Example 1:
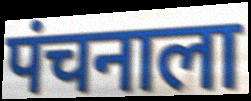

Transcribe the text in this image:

पंचनाला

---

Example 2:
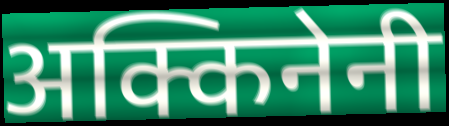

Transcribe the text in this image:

अक्किनेनी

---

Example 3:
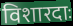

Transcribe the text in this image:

विशारदाः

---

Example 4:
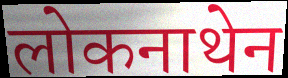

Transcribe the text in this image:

लोकनाथेन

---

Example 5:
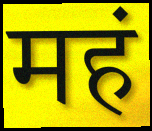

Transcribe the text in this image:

महं